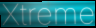
Xtreme